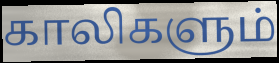
காலிகளும்